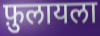
फ़ुलायला